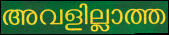
അവളില്ലാത്ത